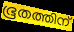
ഭൂതത്തിന്